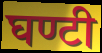
घण्टी